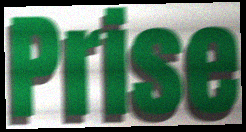
Prise